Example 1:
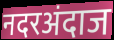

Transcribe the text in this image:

नदरअंदाज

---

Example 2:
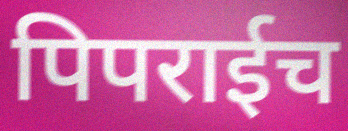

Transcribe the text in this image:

पिपराईच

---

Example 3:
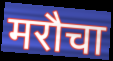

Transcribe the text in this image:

मरौचा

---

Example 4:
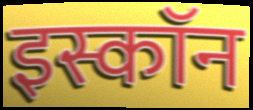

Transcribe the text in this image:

इस्‍कॉन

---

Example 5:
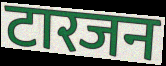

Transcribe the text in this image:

टारजन